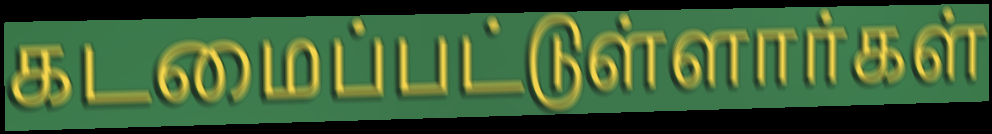
கடமைப்பட்டுள்ளார்கள்